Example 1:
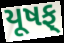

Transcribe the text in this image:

યૂષફ્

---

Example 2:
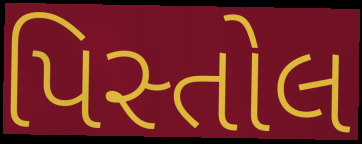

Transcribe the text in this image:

પિસ્તોલ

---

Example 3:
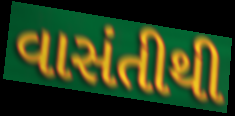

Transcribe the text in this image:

વાસંતીથી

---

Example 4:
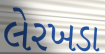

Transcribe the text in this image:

લેરખડા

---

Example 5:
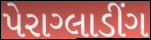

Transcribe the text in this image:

પેરાગ્લાડીંગ